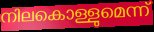
നിലകൊള്ളുമെന്ന്